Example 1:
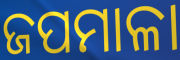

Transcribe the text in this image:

ଜପମାଳା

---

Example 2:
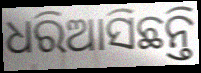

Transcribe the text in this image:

ଧରିଆସିଛନ୍ତି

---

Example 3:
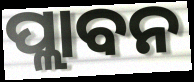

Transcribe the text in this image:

ପ୍ଲାବନ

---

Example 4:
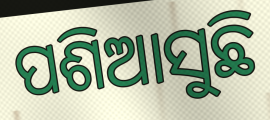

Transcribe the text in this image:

ପଶିଆସୁଛି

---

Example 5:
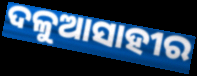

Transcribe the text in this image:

ଦଳୁଆସାହୀର